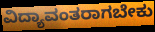
ವಿದ್ಯಾವಂತರಾಗಬೇಕು